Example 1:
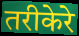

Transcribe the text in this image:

तरीकेरे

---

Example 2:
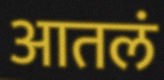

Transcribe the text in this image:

आतलं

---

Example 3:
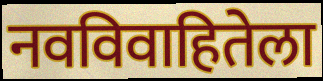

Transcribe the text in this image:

नवविवाहितेला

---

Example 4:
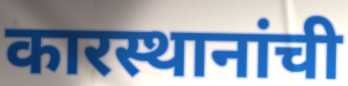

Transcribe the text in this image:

कारस्थानांची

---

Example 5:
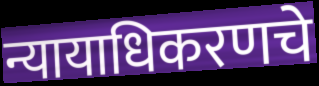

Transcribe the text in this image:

न्यायाधिकरणचे